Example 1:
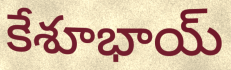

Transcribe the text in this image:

కేశూభాయ్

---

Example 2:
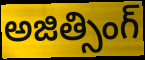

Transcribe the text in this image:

అజిత్సింగ్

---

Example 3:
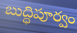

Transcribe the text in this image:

బుద్ధిపూర్వం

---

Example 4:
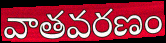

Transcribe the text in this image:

వాతవరణం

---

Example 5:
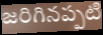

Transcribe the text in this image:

జరిగినప్పటి